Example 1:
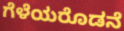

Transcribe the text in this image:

ಗೆಳೆಯರೊಡನೆ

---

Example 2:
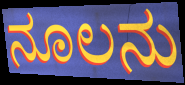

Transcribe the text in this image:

ನೂಲನು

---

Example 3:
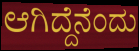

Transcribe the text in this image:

ಆಗಿದ್ದೆನೆಂದು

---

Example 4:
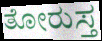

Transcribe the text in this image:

ತೋರುಸ್ತ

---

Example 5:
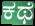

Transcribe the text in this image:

ಕಥೆ